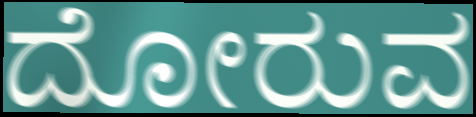
ದೋರುವ